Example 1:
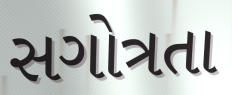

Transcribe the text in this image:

સગોત્રતા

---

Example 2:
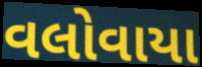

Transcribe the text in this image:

વલોવાયા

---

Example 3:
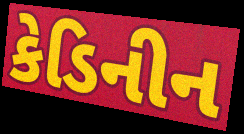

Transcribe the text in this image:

કેડિનીન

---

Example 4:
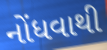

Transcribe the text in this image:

નોંધવાથી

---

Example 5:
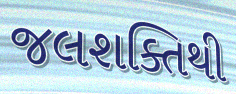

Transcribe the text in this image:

જલશક્તિથી